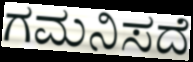
ಗಮನಿಸದೆ